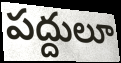
పద్దులూ